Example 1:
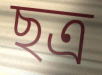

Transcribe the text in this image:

ছত্র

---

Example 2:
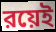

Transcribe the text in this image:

রয়েই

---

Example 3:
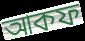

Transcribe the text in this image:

আকফ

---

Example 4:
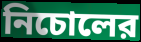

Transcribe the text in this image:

নিচোলের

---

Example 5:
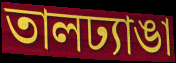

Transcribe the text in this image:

তালঢ্যাঙা